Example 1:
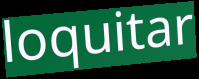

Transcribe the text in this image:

loquitar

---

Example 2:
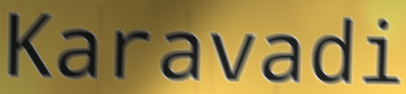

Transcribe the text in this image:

Karavadi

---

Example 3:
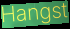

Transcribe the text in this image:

Hangst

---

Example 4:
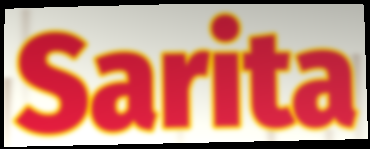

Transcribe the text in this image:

Sarita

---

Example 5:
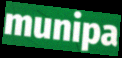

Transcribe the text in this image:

munipa